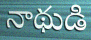
నాథుడి